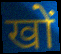
खों